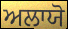
ਅਲਾਯੋ